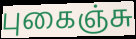
புகைஞ்சு